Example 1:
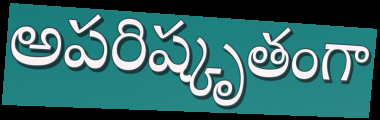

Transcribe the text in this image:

అపరిష్కృతంగా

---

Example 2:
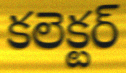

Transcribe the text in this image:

కలెక్టర్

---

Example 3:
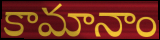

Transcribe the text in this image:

కామానాం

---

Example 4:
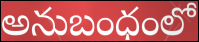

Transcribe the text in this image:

అనుబంధంలో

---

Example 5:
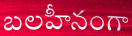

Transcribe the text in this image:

బలహీనంగా